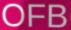
OFB